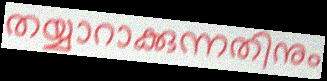
തയ്യാറാക്കുന്നതിനും